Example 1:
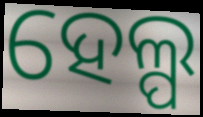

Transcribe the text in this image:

ହେଲ୍ପ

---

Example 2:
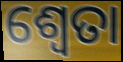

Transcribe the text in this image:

ଶ୍ୱେତା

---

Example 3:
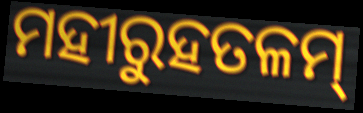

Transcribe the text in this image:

ମହୀରୁହତଳମ୍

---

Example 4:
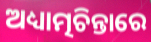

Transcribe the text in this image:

ଅଧ୍ୟାତ୍ମଚିନ୍ତାରେ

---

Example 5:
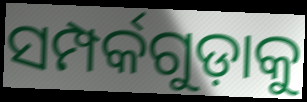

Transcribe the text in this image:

ସମ୍ପର୍କଗୁଡ଼ାକୁ